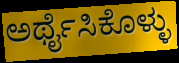
ಅರ್ಥೈಸಿಕೊಳ್ಳು